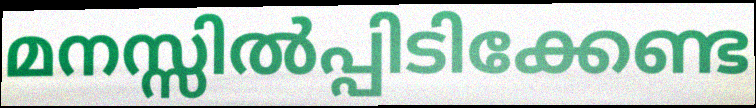
മനസ്സിൽപ്പിടിക്കേണ്ട